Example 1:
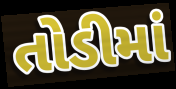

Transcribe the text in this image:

તોડીમાં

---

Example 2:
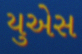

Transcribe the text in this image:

યુએસ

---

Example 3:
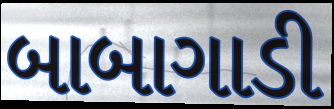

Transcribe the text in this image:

બાબાગાડી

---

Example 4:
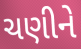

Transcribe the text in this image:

ચણીને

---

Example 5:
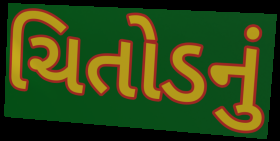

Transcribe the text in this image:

ચિતોડનું